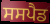
ਸਸਪੈਡ